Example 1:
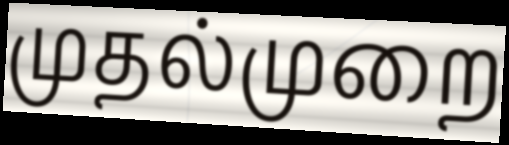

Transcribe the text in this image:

முதல்முறை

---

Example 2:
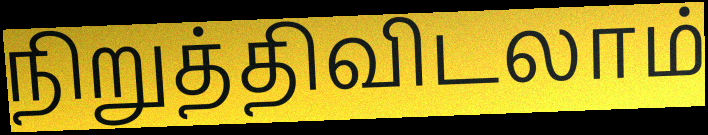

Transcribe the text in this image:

நிறுத்திவிடலாம்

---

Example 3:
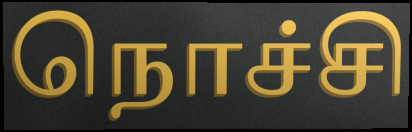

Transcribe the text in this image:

நொச்சி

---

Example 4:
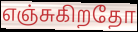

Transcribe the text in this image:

எஞ்சுகிறதோ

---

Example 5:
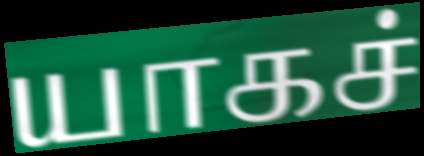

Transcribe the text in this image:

யாகச்